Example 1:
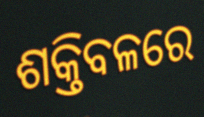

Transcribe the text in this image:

ଶକ୍ତିବଳରେ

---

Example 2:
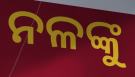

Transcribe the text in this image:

ନଳଙ୍କୁ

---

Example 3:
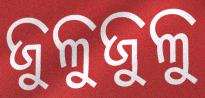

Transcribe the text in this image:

ଜୁଳୁଜୁଳୁ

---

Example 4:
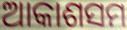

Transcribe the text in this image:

ଆକାଶସମ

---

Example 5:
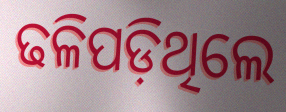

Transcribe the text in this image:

ଢଳିପଡ଼ିଥିଲେ